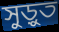
সুড়ুত